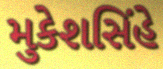
મુકેશસિંહે